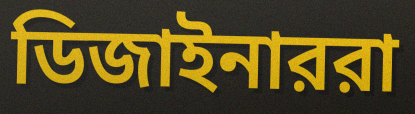
ডিজাইনাররা